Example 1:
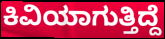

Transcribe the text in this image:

ಕಿವಿಯಾಗುತ್ತಿದ್ದೆ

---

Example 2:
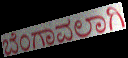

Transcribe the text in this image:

ಬೆಂಗಾವಲಾಗಿ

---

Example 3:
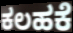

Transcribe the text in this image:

ಕಲಹಕೆ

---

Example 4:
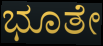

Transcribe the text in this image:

ಭೂತೇ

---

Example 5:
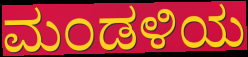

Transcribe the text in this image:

ಮಂಡಳಿಯ